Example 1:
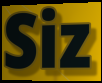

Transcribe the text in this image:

Siz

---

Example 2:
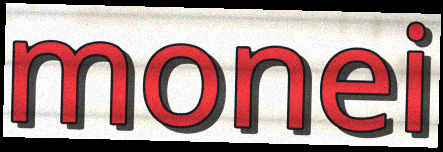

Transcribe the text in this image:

monei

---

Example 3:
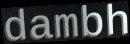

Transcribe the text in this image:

dambh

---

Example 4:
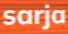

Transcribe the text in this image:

sarja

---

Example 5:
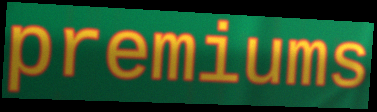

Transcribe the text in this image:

premiums